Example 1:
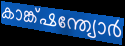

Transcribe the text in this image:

കാങ്ക്ഷന്ത്യോർ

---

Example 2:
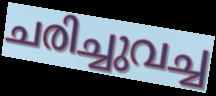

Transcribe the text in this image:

ചരിച്ചുവച്ച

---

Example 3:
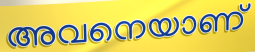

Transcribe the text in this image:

അവനെയാണ്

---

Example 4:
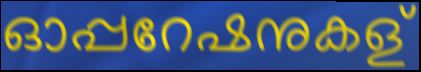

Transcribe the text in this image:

ഓപ്പറേഷനുകള്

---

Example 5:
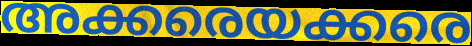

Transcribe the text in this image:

അക്കരെയക്കരെ